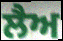
ਲੈਅ